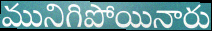
మునిగిపోయినారు